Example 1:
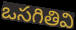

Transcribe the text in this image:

ఒసగితివి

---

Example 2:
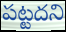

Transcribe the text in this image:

పట్టదని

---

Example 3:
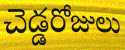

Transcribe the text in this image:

చెడ్డరోజులు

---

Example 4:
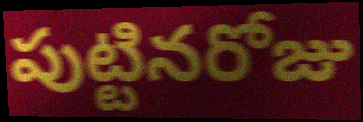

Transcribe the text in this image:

పుట్టినరోజు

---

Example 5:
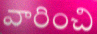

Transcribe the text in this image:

వారించి